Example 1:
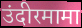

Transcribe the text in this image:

उंदीरमामा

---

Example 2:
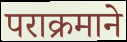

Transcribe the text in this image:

पराक्रमाने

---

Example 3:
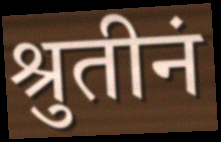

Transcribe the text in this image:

श्रुतीनं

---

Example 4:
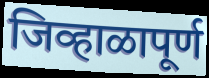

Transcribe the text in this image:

जिव्हाळापूर्ण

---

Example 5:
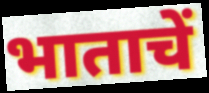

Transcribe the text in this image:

भाताचें